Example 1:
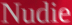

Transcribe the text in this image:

Nudie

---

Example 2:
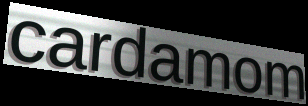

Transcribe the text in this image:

cardamom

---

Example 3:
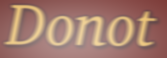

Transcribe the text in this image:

Donot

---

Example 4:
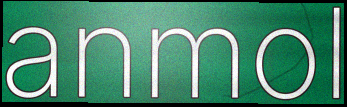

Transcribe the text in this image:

anmol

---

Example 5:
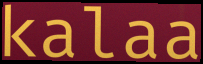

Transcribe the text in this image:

kalaa